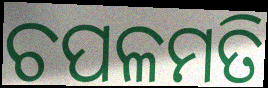
ଚପଳମତି